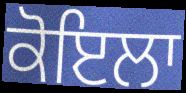
ਕੋਇਲਾ